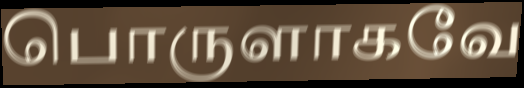
பொருளாகவே